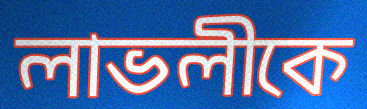
লাভলীকে